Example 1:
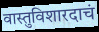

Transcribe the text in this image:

वास्तुविशारदाचं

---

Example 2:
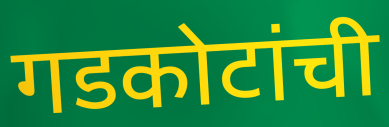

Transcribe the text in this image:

गडकोटांची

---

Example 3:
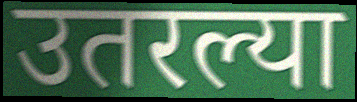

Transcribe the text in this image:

उतरल्या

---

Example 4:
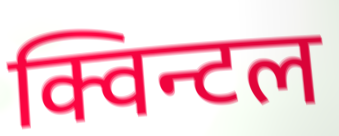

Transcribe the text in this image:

क्विन्टल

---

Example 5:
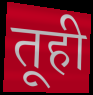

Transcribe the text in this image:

तूही